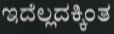
ಇದೆಲ್ಲದಕ್ಕಿಂತ